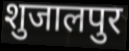
शुजालपुर